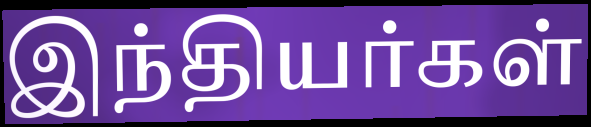
இந்தியர்கள்